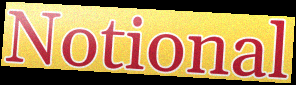
Notional